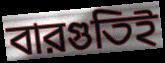
বারগুতিই